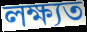
লক্ষ্য়ত